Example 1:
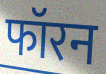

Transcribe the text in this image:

फॉरन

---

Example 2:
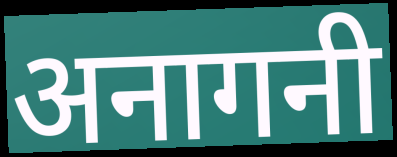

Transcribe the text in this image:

अनागनी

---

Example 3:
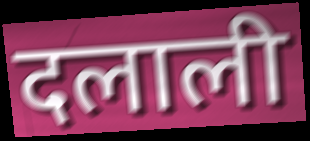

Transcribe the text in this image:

दलाली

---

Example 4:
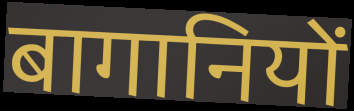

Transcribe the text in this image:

बागानियों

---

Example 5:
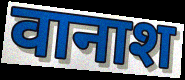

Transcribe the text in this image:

वानाश